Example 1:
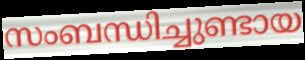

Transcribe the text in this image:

സംബന്ധിച്ചുണ്ടായ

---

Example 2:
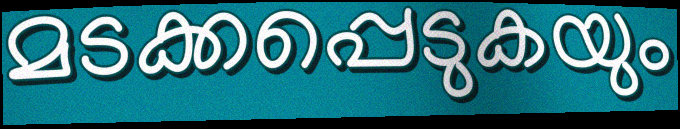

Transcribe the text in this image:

മടക്കപ്പെടുകയും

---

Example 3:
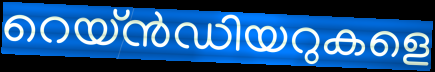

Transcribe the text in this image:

റെയ്ൻഡിയറുകളെ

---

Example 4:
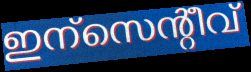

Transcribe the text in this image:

ഇന്സെന്റീവ്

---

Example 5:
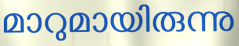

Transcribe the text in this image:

മാറുമായിരുന്നു